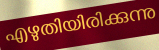
എഴുതിയിരിക്കുന്നു